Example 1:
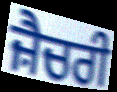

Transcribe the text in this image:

ਜ਼ੈਚਰੀ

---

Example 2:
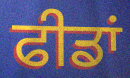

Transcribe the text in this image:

ਫੀਡਾਂ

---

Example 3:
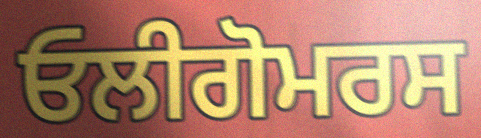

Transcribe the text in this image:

ਓਲੀਗੋਮਰਸ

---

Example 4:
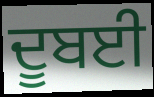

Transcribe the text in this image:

ਦੂਬਈ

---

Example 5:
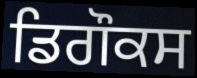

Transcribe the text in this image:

ਡਿਗੌਕਸ